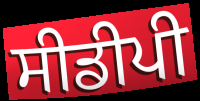
ਸੀਡੀਪੀ